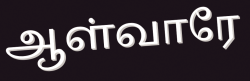
ஆள்வாரே